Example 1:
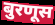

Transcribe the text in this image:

बुरणूस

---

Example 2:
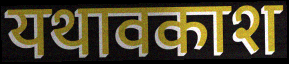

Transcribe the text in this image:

यथावकाश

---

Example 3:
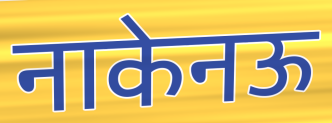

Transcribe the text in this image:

नाकेनऊ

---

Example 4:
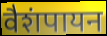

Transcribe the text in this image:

वैशंपायन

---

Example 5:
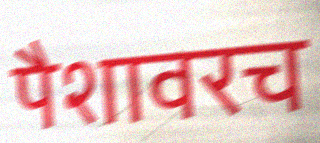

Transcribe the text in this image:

पैशावरच